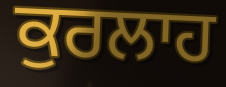
ਕੁਰਲਾਹ